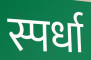
स्पर्धा